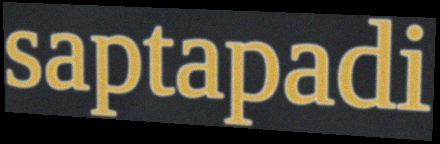
saptapadi